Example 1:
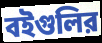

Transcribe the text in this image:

বইগুলির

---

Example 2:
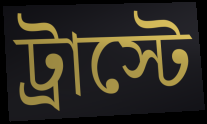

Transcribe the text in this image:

ট্রাস্টে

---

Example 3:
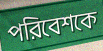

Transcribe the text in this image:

পরিবেশকে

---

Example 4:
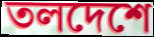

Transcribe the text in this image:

তলদেশে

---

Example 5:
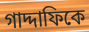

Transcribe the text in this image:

গাদ্দাফিকে